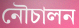
নৌচালন